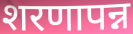
शरणापन्न